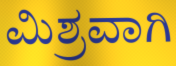
ಮಿಶ್ರವಾಗಿ